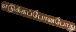
எடுக்கப்போனபோது